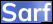
Sarf